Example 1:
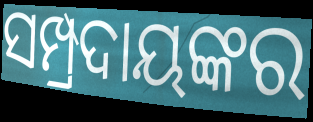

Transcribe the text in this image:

ସମ୍ପ୍ରଦାୟଙ୍କର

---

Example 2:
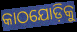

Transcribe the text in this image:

କାଠଯୋଡ଼ିକୁ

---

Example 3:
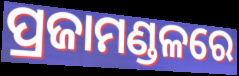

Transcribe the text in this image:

ପ୍ରଜାମଣ୍ଡଳରେ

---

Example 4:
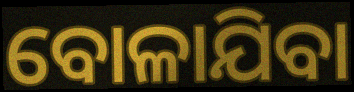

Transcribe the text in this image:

ବୋଳାଯିବା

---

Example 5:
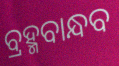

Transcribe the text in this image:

ବ୍ରହ୍ମବାନ୍ଧବ